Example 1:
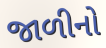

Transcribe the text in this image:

જાળીનો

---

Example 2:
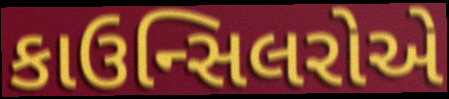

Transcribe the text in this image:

કાઉન્સિલરોએ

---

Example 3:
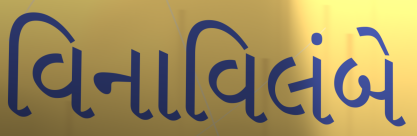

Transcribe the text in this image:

વિનાવિલંબે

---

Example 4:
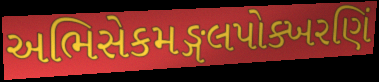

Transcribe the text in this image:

અભિસેકમઙ્ગલપોક્ખરણિં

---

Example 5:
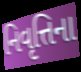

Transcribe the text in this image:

નિવૃત્તિના